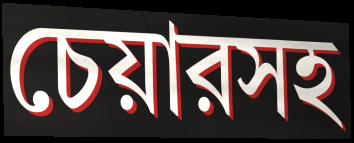
চেয়ারসহ